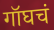
गॉघचं